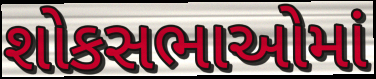
શોકસભાઓમાં